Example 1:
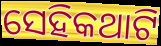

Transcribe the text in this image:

ସେହିକଥାଟି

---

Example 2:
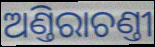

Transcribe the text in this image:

ଅଣ୍ତିରାଚଣ୍ତୀ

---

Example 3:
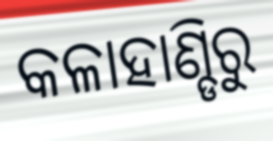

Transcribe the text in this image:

କଳାହାଣ୍ଡିରୁ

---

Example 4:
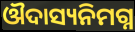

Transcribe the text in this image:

ଔଦାସ୍ୟନିମଗ୍ନ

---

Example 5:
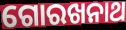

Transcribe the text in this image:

ଗୋରଖନାଥ